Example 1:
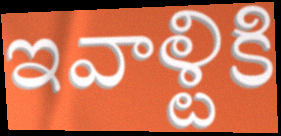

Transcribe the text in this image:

ఇవాళ్టికి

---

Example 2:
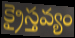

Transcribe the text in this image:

క్రైస్తవ్యం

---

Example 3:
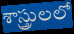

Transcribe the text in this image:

శాస్త్రులలో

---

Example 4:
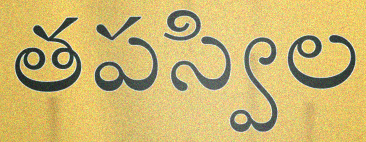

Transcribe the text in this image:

తపస్విల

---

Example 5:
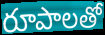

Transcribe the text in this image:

రూపాలతో